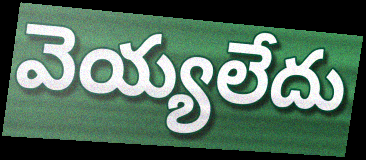
వెయ్యలేదు